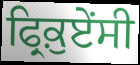
ਫ੍ਰਿਕ਼ੁਏਂਸੀ